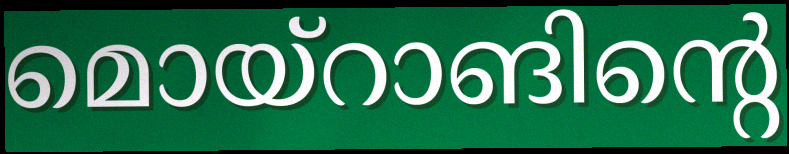
മൊയ്റാങിന്റെ